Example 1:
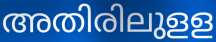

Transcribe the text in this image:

അതിരിലുളള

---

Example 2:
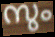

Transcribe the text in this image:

സും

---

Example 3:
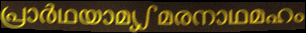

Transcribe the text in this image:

പ്രാർഥയാമ്യഽമരനാഥമഹം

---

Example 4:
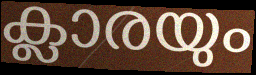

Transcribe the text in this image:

ക്ലാരയും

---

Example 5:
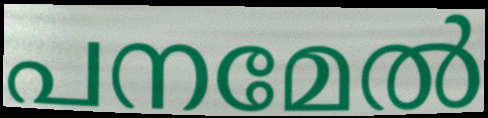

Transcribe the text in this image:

പനമേൽ